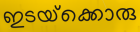
ഇടയ്‌ക്കൊരു